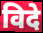
विदे